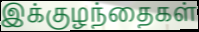
இக்குழந்தைகள்